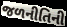
જળનીતિની